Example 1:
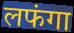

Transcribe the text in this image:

लफंगा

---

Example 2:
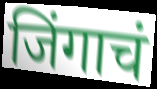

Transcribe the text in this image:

जिंगाचं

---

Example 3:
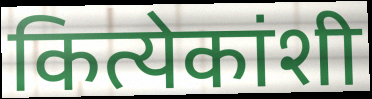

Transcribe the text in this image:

कित्येकांशी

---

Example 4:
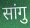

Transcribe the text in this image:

सांगु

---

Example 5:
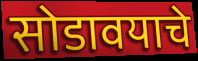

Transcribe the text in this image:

सोडावयाचे